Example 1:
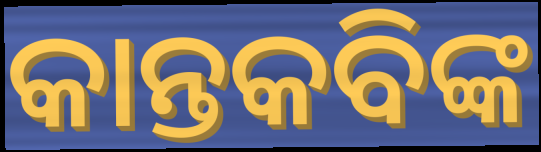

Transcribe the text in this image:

କାନ୍ତକବିଙ୍କ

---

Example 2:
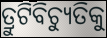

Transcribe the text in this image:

ତ୍ରୁଟିବିଚ୍ୟୁତିକୁ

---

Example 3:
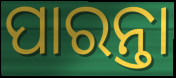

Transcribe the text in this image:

ପାରନ୍ତା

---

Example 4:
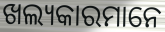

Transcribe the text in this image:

ଖଲ୍ୟକାରମାନେ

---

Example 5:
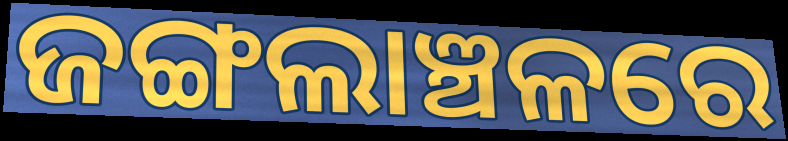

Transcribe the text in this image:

ଜଙ୍ଗଲାଞ୍ଚଳରେ